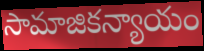
సామాజికన్యాయం